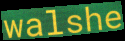
walshe